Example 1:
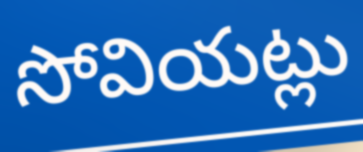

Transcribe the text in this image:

సోవియట్లు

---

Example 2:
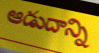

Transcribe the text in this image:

ఆడుదాన్ని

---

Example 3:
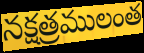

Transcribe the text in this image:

నక్షత్రములంత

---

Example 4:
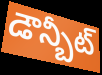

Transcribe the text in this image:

డౌన్బీట్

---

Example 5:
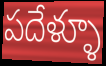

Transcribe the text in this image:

పదేళ్ళూ